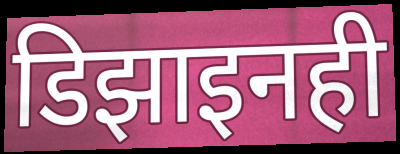
डिझाइनही